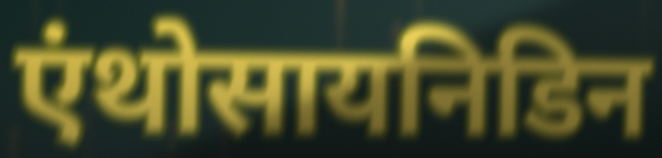
एंथोसायनिडिन